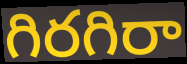
గిరగిరా